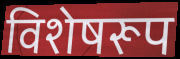
विशेषरूप